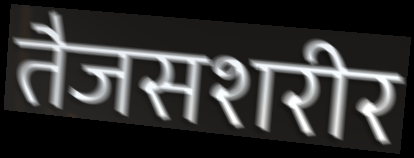
तैजसशरीर